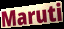
Maruti